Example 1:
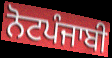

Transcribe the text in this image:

ਨੋਟਪੰਜਾਬੀ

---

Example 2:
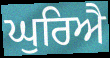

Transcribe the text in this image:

ਘੁਰਿਐ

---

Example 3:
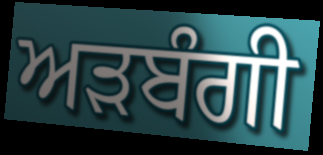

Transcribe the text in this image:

ਅੜਬੰਗੀ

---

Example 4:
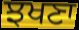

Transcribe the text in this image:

ਝਖਣਾ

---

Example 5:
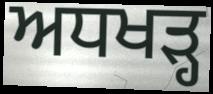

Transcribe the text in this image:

ਅਧਖੜ੍ਹ